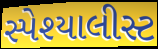
સ્પેશ્યાલીસ્ટ